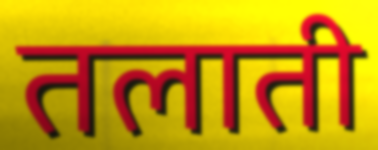
तलाती